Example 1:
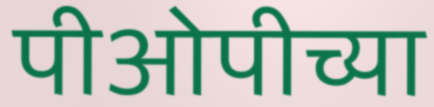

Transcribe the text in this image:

पीओपीच्या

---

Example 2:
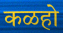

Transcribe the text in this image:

कळहो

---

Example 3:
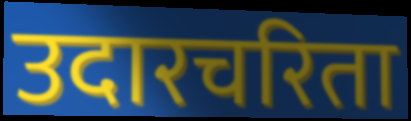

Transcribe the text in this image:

उदारचरिता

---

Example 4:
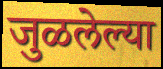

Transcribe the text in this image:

जुळलेल्या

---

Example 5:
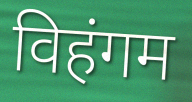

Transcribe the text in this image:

विहंगम